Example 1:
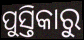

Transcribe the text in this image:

ପୁସ୍ତିକାରୁ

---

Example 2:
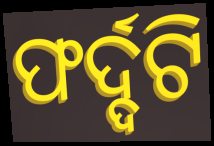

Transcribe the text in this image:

ଫର୍ଦ୍ଦଟି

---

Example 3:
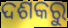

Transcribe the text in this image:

ଦଶକରୁ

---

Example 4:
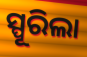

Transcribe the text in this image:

ସ୍ପୂରିଲା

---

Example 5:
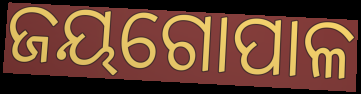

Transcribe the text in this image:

ଜୟଗୋପାଳ